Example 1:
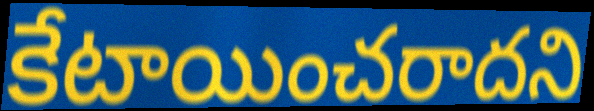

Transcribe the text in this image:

కేటాయించరాదని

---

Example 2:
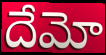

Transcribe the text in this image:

దేమో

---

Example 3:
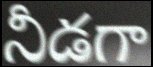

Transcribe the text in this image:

నీడగా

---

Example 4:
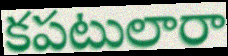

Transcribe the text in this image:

కపటులారా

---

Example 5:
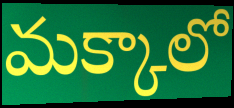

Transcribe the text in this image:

మక్కాలో